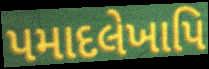
પમાદલેખાપિ